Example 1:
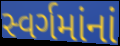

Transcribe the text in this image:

સ્વર્ગમાંનાં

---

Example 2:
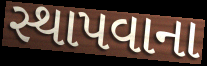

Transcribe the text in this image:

સ્થાપવાના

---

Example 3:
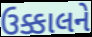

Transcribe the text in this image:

ઉક્કાલને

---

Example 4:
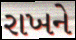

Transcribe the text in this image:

રાખને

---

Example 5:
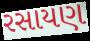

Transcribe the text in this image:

રસાયણ